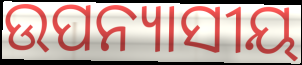
ଉପନ୍ୟାସୀୟ